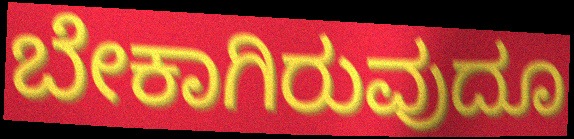
ಬೇಕಾಗಿರುವುದೂ